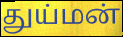
துய்மன்